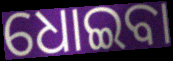
ଧୋଇବା